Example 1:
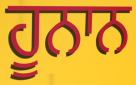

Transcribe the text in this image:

ਹੂਨਾਨ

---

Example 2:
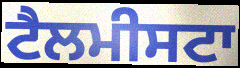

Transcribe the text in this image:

ਟੈਲਮੀਸਟਾ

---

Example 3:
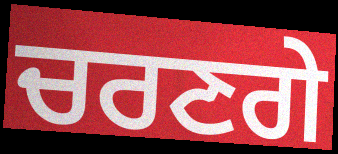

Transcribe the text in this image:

ਚਰਣਗੇ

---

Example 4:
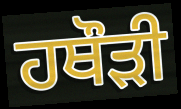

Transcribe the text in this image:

ਹਥੌੜੀ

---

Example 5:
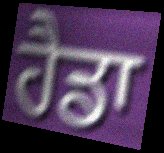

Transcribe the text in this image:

ਹੈਡਾ